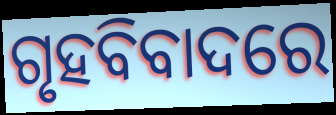
ଗୃହବିବାଦରେ